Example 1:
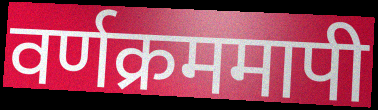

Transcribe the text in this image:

वर्णक्रममापी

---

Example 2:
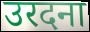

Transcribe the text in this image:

उरदना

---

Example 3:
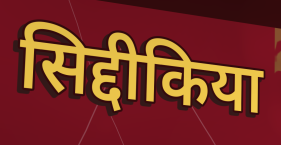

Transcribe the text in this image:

सिद्दीकिया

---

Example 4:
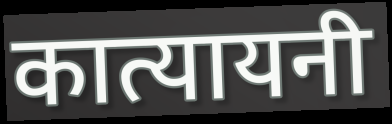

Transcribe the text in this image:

कात्यायनी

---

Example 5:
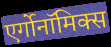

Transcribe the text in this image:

एर्गोनॉमिक्स